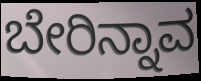
ಬೇರಿನ್ನಾವ